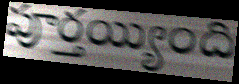
పూర్తయ్యింది